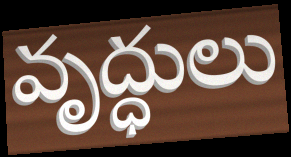
వృద్ధులు